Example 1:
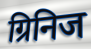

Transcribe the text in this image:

ग्रिनिज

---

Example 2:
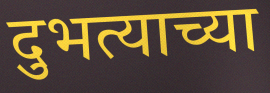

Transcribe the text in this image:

दुभत्याच्या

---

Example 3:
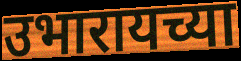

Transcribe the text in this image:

उभारायच्या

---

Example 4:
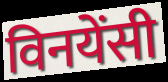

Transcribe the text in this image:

विनयेंसी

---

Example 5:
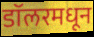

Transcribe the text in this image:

डॉलरमधून